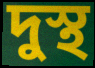
দুস্থ